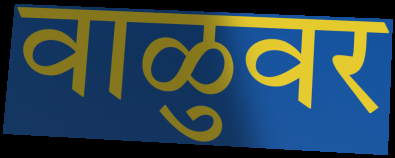
वाळुवर